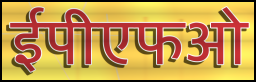
ईपीएफओ